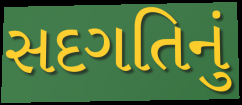
સદગતિનું